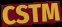
CSTM